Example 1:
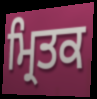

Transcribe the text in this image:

ਮ੍ਰਿਤਕ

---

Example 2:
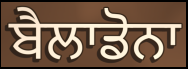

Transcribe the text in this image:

ਬੈਲਾਡੋਨਾ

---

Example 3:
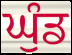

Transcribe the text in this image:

ਘੁੰਡ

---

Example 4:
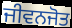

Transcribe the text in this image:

ਜੀਵਨਜੋਤ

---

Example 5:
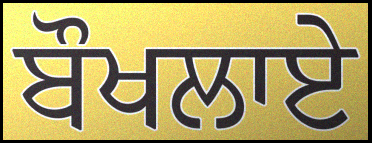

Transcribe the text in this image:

ਬੌਖਲਾਏ